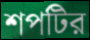
শপটির